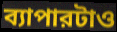
ব্যাপারটাও